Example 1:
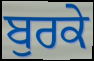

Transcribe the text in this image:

ਬੁਰਕੇ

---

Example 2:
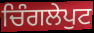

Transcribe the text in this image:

ਚਿੰਗਲੇਪੁਟ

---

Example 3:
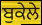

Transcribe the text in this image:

ਬੁਕੇਲੇ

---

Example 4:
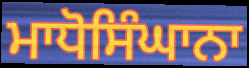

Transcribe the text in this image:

ਮਾਧੋਸਿੰਘਾਨਾ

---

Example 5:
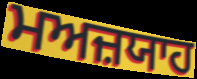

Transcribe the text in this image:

ਮਅਜ਼ਯਾਹ